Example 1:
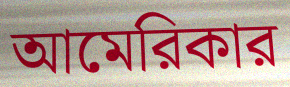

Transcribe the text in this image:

আমেরিকার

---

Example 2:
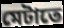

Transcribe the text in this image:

মেটাতে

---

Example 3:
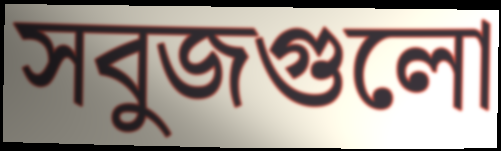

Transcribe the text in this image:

সবুজগুলো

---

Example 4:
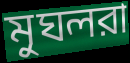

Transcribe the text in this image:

মুঘলরা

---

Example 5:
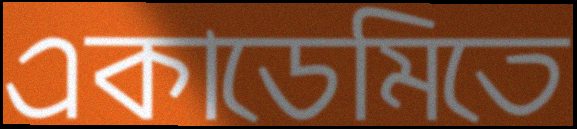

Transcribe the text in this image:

একাডেমিতে